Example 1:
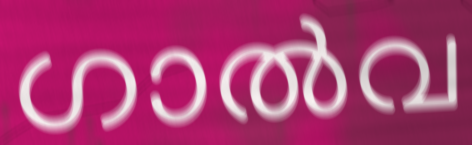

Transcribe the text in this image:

ഗാൽവ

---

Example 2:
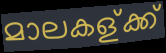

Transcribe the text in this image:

മാലകള്ക്ക്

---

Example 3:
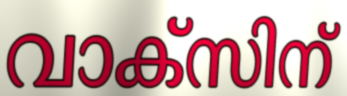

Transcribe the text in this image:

വാക്സിന്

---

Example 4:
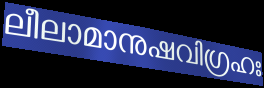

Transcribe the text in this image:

ലീലാമാനുഷവിഗ്രഹഃ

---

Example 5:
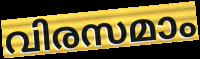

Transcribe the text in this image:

വിരസമാം